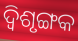
ଦ୍ବିଶୃଙ୍ଗକ